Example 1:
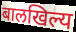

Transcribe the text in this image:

बालखिल्य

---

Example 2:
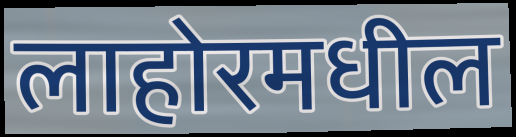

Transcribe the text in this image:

लाहोरमधील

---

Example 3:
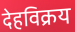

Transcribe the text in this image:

देहविक्रय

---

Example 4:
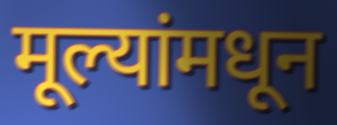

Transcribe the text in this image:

मूल्यांमधून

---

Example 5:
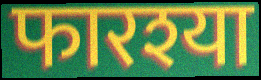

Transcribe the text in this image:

फारश्या